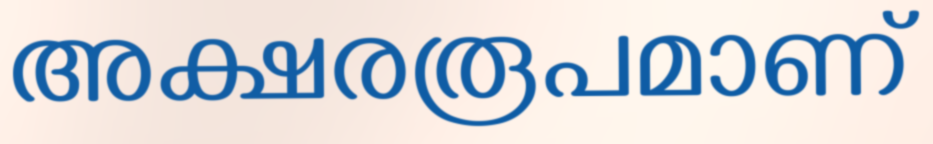
അക്ഷരരൂപമാണ്